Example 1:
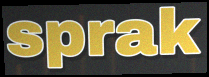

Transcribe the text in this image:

sprak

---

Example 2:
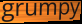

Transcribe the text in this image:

grumpy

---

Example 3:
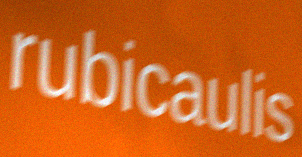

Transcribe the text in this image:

rubicaulis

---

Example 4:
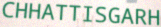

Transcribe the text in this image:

CHHATTISGARH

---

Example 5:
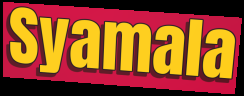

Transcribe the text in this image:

Syamala